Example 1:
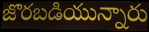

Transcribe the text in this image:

జొరబడియున్నారు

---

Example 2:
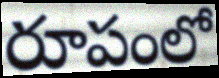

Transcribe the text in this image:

రూపంలో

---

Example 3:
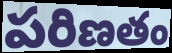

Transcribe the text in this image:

పరిణతం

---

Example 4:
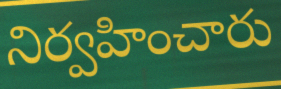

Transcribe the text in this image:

నిర్వహించారు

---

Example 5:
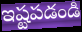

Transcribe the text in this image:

ఇష్టపడండి